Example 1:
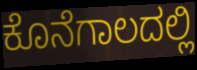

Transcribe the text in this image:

ಕೊನೆಗಾಲದಲ್ಲಿ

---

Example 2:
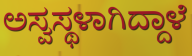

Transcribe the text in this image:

ಅಸ್ವಸ್ಥಳಾಗಿದ್ದಾಳೆ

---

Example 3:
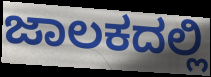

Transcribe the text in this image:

ಜಾಲಕದಲ್ಲಿ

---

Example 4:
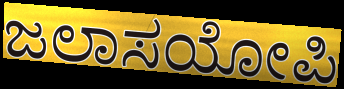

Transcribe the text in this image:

ಜಲಾಸಯೋಪಿ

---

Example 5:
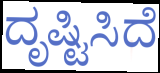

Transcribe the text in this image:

ದೃಷ್ಟಿಸಿದೆ